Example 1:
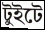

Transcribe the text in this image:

টুইটে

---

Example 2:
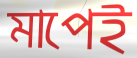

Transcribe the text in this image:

মাপেই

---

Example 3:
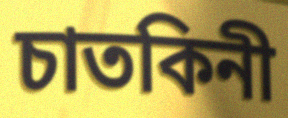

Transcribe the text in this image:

চাতকিনী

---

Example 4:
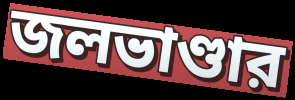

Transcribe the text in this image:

জলভাণ্ডার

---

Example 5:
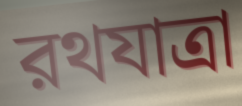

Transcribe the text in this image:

রথযাত্রা